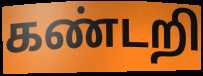
கண்டறி